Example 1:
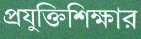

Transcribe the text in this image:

প্রযুক্তিশিক্ষার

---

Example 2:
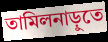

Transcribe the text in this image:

তামিলনাড়ুতে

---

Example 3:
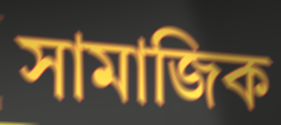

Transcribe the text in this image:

সামাজিক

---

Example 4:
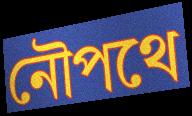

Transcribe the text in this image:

নৌপথে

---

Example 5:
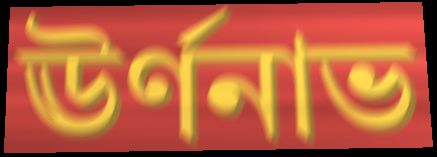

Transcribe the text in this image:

ঊর্ণনাভ